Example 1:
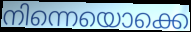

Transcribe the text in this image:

നിന്നെയൊക്കെ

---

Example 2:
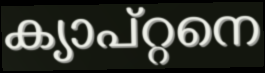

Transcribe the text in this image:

ക്യാപ്റ്റനെ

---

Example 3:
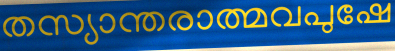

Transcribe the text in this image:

തസ്യാന്തരാത്മവപുഷേ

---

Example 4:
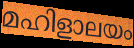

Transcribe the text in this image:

മഹിളാലയം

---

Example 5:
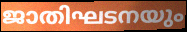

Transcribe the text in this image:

ജാതിഘടനയും